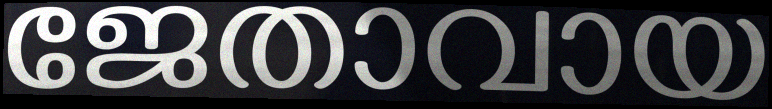
ജേതാവായ